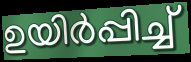
ഉയിർപ്പിച്ച്